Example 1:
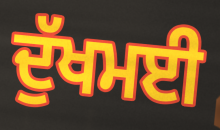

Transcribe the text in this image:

ਦੁੱਖਮਈ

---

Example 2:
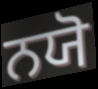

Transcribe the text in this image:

ਨਯੋ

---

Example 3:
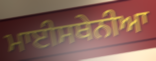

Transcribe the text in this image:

ਮਾਈਸਥੇਨੀਆ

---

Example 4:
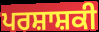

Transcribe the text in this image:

ਪਰਸ਼ਾਸ਼ਕੀ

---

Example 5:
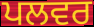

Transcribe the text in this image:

ਪਲਵਰ